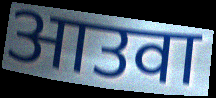
आउवा